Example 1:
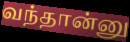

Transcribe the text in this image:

வந்தான்னு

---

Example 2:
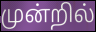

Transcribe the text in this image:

முன்றில்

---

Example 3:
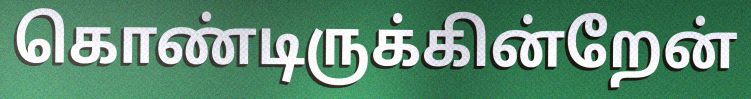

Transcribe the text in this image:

கொண்டிருக்கின்றேன்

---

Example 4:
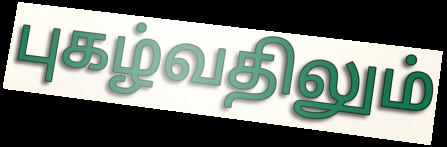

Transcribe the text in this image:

புகழ்வதிலும்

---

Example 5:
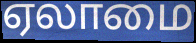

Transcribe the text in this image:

ஏலாமை